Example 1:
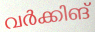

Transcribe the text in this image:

വർക്കിങ്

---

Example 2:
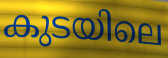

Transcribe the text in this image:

കുടയിലെ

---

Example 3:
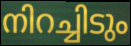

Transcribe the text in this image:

നിറച്ചിടും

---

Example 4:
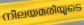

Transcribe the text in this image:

നീലയമരിയുടെ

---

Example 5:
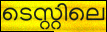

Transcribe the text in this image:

ടെസ്റ്റിലെ